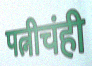
पत्नीचंही